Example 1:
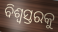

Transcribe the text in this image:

ବିଶ୍ୱସ୍ତରକୁ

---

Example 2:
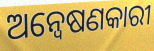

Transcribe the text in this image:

ଅନ୍ୱେଷଣକାରୀ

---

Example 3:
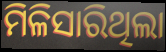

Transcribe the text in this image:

ମିଳିସାରିଥିଲା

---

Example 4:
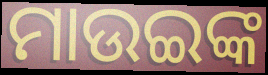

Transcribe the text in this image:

ମାଉଇଙ୍କ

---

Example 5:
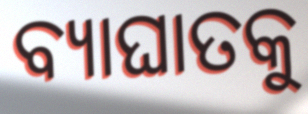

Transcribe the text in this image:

ବ୍ୟାଘାତକୁ